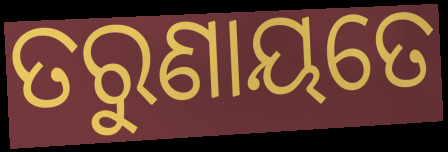
ତରୁଣାୟତେ